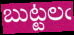
బుట్టలఁ